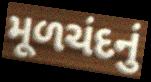
મૂળચંદનું